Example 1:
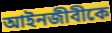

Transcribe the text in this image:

আইনজীবীকে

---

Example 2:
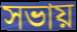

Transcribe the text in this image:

সভায়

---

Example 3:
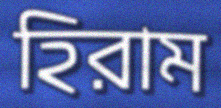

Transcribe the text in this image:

হিরাম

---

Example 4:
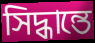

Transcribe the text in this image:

সিদ্ধান্তে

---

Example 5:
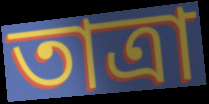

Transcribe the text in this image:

তাত্রা